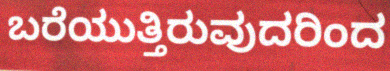
ಬರೆಯುತ್ತಿರುವುದರಿಂದ